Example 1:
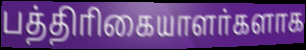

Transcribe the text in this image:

பத்திரிகையாளர்களாக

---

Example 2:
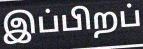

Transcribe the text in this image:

இப்பிறப்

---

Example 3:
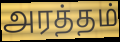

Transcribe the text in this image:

அரத்தம்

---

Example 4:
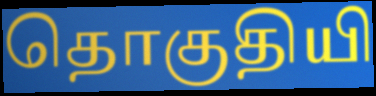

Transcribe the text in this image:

தொகுதியி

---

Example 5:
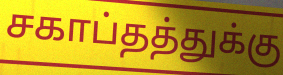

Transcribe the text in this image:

சகாப்தத்துக்கு